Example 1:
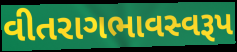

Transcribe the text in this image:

વીતરાગભાવસ્વરૂપ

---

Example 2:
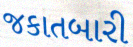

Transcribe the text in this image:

જકાતબારી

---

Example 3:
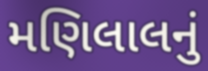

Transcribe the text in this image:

મણિલાલનું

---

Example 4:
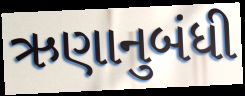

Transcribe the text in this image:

ઋણાનુબંધી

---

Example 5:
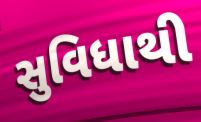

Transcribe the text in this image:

સુવિધાથી